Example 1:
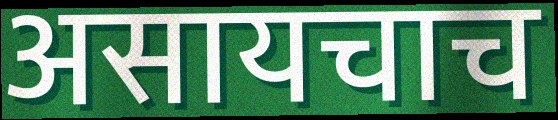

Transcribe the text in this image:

असायचाच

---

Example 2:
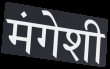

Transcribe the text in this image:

मंगेशी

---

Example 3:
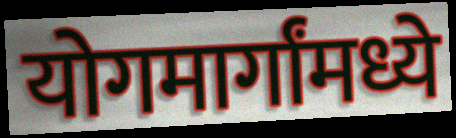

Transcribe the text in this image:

योगमार्गांमध्ये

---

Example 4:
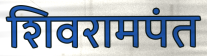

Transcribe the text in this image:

शिवरामपंत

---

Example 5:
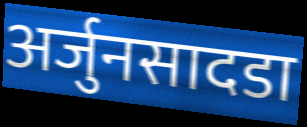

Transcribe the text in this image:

अर्जुनसादडा